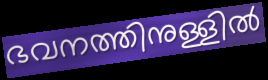
ഭവനത്തിനുള്ളിൽ